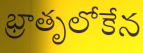
భ్రాతృలోకేన